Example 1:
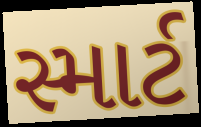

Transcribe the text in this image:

સ્માર્ટ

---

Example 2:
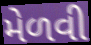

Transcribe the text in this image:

મેળવી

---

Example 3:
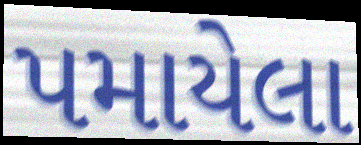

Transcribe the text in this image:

પમાયેલા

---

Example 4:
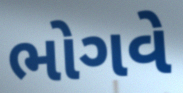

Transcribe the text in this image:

ભોગવે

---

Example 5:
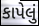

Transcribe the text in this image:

કાપેલું